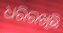
ଧରିରଖିଛି